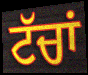
ਟੱਚਾਂ